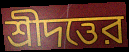
শ্রীদত্তের